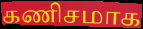
கணிசமாக